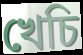
খেচি